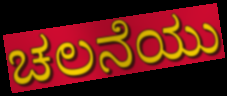
ಚಲನೆಯು